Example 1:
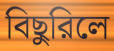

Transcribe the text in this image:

বিছুরিলে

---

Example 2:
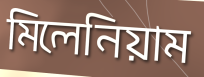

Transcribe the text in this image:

মিলেনিয়াম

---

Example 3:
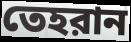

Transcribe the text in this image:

তেহরান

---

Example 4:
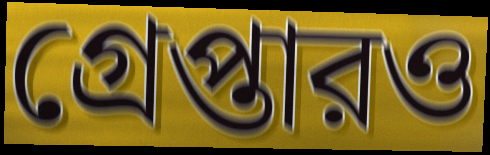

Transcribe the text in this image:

গ্রেপ্তারও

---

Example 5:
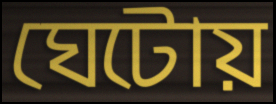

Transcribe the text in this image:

ঘেটোয়